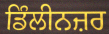
ਡਿੰਲੀਨਜ਼ਰ